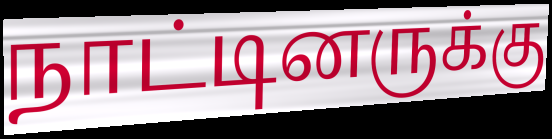
நாட்டினருக்கு